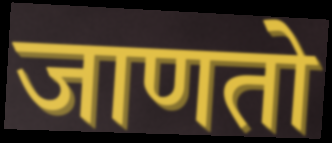
जाणतो